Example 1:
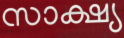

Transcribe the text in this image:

സാക്ഷ്യ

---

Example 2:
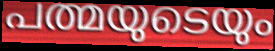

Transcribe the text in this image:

പത്മയുടെയും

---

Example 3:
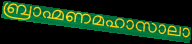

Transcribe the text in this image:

ബ്രാഹ്മണമഹാസാലാ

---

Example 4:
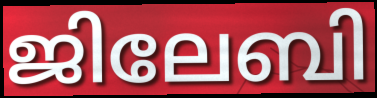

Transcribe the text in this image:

ജിലേബി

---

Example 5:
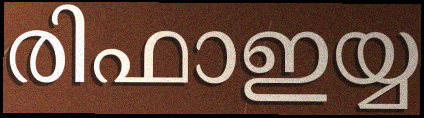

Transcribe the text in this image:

രിഫാഇയ്യ